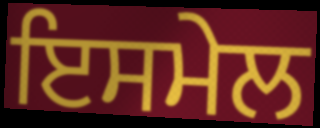
ਇਸਮੇਲ